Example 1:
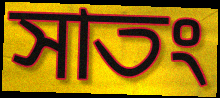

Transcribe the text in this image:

সাতং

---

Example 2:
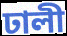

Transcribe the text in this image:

ঢালী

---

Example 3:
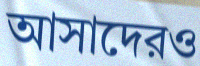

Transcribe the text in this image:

আসাদেরও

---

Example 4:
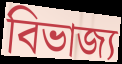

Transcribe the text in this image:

বিভাজ্য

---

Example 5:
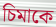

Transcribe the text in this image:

চিমাকে